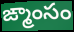
ఙ్మాంసం